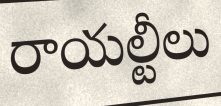
రాయల్టీలు